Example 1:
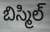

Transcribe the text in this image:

బిస్మిల్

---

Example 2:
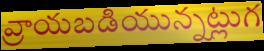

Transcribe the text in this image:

వ్రాయబడియున్నట్లుగ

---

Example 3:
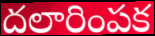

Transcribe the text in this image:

దలారింపక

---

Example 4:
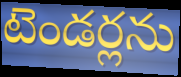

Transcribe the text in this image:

టెండర్లను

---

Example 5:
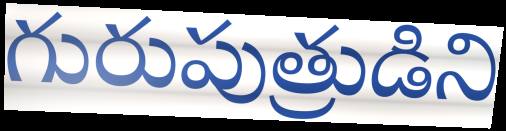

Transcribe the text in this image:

గురుపుత్రుడిని